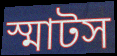
স্মাটস